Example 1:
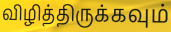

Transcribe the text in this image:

விழித்திருக்கவும்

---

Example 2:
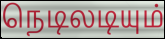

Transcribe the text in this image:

நெடிலடியும்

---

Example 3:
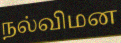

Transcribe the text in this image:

நல்விமன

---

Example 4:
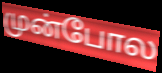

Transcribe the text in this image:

முன்போல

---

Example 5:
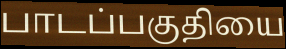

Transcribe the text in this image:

பாடப்பகுதியை